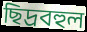
ছিদ্রবহুল